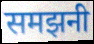
समझनी